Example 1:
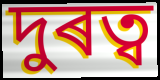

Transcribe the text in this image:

দুৰত্ব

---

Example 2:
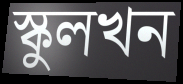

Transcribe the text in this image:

স্কুলখন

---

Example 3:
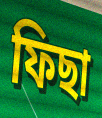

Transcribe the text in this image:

ফিছা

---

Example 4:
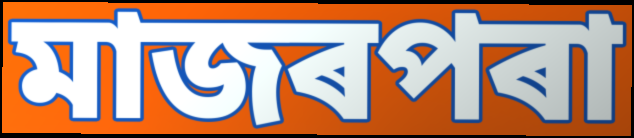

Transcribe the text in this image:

মাজৰপৰা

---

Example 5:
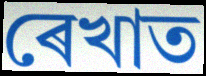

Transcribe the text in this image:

ৰেখাত